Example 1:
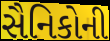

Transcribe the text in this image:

સૈનિકોની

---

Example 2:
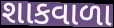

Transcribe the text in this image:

શાકવાળા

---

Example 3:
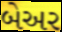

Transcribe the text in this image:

બેઅર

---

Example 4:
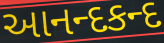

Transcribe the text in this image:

આનન્દકન્દ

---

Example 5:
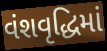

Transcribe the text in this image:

વંશવૃદ્ધિમાં